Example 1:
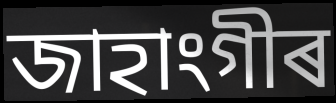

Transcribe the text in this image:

জাহাংগীৰ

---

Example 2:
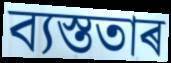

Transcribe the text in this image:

ব্যস্ততাৰ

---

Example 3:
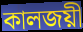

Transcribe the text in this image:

কালজয়ী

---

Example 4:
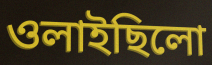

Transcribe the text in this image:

ওলাইছিলো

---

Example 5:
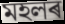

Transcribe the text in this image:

মহলৰ